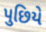
પુછિયે